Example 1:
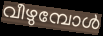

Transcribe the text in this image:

വീഴുമ്പോൾ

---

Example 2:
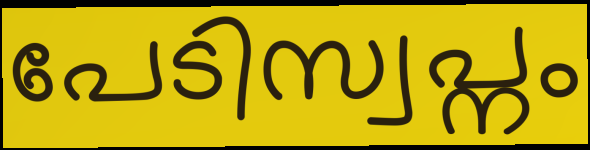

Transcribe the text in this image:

പേടിസ്വപ്നം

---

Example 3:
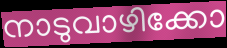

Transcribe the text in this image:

നാടുവാഴിക്കോ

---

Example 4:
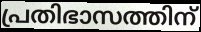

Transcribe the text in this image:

പ്രതിഭാസത്തിന്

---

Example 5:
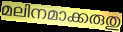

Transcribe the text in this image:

മലിനമാക്കരുതു